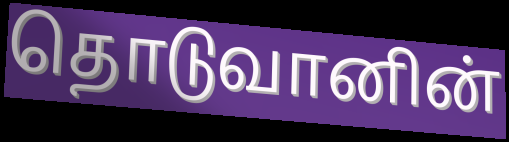
தொடுவானின்